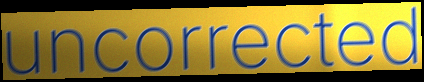
uncorrected